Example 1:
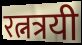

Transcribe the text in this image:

रत्नत्रयी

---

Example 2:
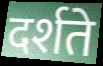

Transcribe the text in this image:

दर्शते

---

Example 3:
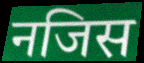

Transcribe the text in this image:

नजिस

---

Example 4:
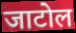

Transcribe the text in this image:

जाटोल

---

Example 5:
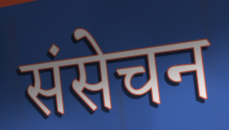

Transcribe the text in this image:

संसेचन